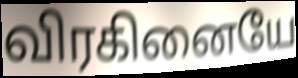
விரகினையே